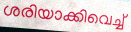
ശരിയാക്കിവെച്ച്